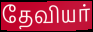
தேவியர்